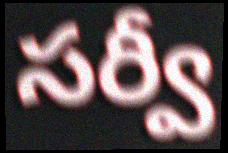
సర్వీ